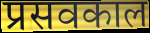
प्रसवकाल